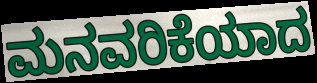
ಮನವರಿಕೆಯಾದ